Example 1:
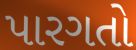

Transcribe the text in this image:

પારગતો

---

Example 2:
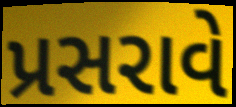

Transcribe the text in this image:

પ્રસરાવે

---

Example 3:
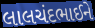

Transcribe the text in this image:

લાલચંદભાઈને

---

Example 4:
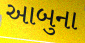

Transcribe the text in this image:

આબુના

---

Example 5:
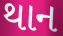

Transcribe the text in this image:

થાન